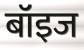
बॉइज